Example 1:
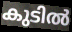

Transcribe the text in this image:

കുടിൽ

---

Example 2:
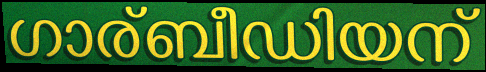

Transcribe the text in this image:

ഗാര്ബീഡിയന്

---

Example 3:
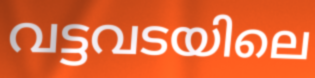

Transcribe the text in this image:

വട്ടവടയിലെ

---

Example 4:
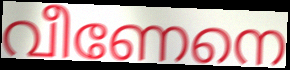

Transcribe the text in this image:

വീണേനെ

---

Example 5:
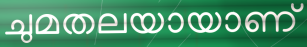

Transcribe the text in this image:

ചുമതലയായാണ്